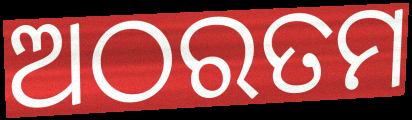
ଅଠରତମ